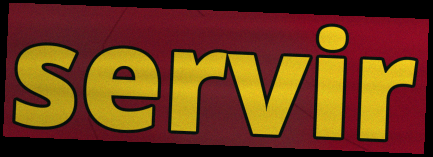
servir